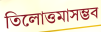
তিলোত্তমাসম্ভব